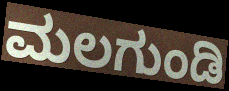
ಮಲಗುಂಡಿ